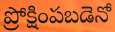
ప్రోక్షింపబడెనో